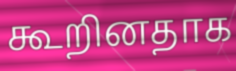
கூறினதாக